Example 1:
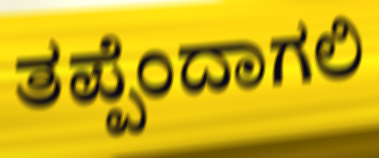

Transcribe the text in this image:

ತಪ್ಪೆಂದಾಗಲಿ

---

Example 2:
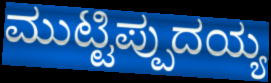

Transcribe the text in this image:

ಮುಟ್ಟಿಪ್ಪುದಯ್ಯ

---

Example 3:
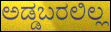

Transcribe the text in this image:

ಅಡ್ಡಬರಲಿಲ್ಲ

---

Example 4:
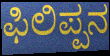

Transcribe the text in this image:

ಫಿಲಿಪ್ಪನ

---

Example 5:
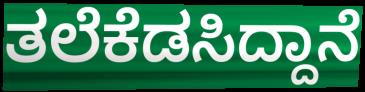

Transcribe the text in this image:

ತಲೆಕೆಡಸಿದ್ದಾನೆ